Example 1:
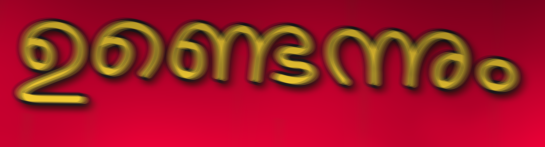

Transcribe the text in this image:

ഉണ്ടെന്നും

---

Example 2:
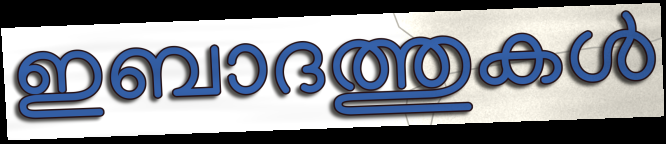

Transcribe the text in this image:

ഇബാദത്തുകൾ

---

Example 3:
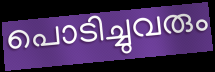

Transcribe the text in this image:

പൊടിച്ചുവരും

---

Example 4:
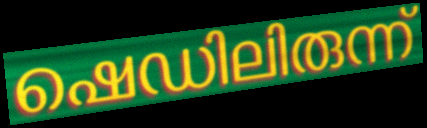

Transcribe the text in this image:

ഷെഡിലിരുന്ന്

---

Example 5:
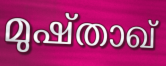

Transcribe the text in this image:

മുഷ്താഖ്